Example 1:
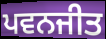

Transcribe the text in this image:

ਪਵਨਜੀਤ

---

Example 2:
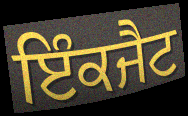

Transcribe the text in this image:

ਇੰਕਜੈਟ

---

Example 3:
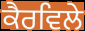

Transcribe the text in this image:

ਕੈਰਵਿਲੇ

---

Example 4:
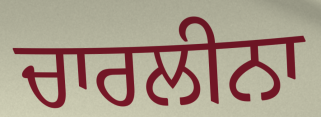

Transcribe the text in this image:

ਚਾਰਲੀਨਾ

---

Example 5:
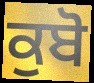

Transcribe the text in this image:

ਕੁਬੋ